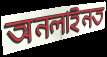
অনলাইনত